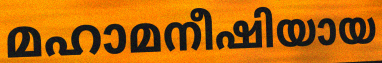
മഹാമനീഷിയായ